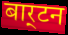
बार्टन